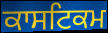
ਕਾਸਟਿਕਮ